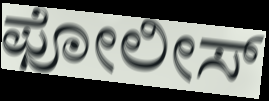
ಫೋಲೀಸ್